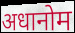
अधानोम